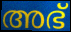
അഭ്